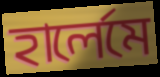
হার্লেমে